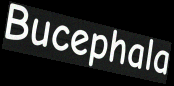
Bucephala